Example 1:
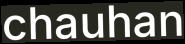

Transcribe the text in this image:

chauhan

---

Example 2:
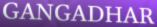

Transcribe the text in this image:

GANGADHAR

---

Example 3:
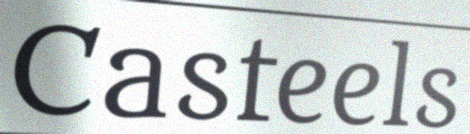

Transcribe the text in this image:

Casteels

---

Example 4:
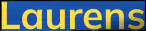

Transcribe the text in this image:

Laurens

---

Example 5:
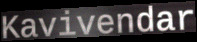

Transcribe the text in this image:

Kavivendar